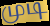
முடி